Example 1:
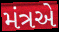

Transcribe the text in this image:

મંત્રએ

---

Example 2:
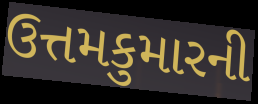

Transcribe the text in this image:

ઉત્તમકુમારની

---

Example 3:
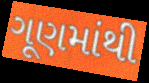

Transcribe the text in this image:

ગૂણમાંથી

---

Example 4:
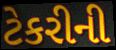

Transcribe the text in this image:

ટેકરીની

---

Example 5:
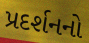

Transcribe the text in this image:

પ્રદર્શનનો